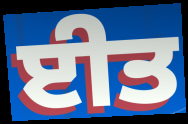
ਈਤ